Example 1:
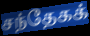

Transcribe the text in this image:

சந்தேகக்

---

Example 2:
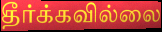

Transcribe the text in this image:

தீர்க்கவில்லை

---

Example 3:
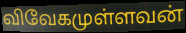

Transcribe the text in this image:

விவேகமுள்ளவன்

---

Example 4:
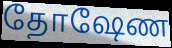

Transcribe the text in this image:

தோஷேண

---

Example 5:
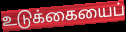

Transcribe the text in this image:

உடுக்கையைப்